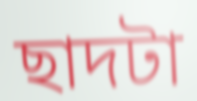
ছাদটা